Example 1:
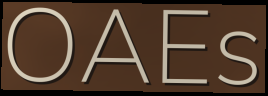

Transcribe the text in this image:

OAEs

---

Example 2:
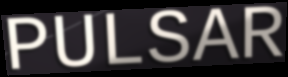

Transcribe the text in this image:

PULSAR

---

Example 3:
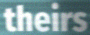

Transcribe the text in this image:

theirs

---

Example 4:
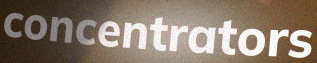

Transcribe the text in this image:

concentrators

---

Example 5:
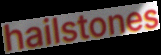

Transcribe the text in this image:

hailstones